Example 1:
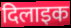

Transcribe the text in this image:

दिलाइक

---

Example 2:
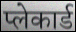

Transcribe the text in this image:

प्लेकार्ड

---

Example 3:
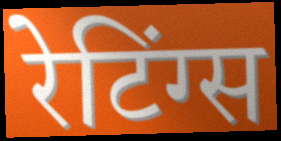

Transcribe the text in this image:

रेटिंग्स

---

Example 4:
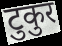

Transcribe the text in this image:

टुकुर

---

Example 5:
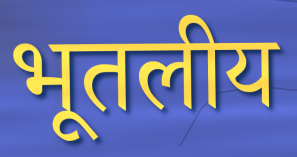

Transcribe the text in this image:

भूतलीय